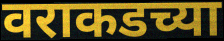
वराकडच्या